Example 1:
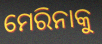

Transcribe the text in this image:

ମେରିନାକୁ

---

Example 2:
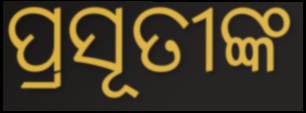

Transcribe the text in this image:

ପ୍ରସୂତୀଙ୍କ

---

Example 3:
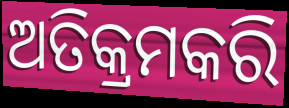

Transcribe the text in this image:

ଅତିକ୍ରମକରି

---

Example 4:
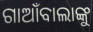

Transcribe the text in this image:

ଗାଆଁବାଲାଙ୍କୁ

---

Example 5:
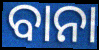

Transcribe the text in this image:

ବାନା